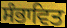
ਸੰਭਾਵਿਤ